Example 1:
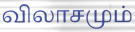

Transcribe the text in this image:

விலாசமும்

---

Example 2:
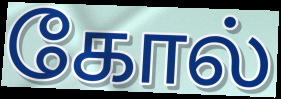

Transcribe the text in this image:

கோல்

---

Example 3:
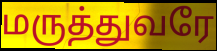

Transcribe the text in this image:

மருத்துவரே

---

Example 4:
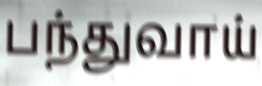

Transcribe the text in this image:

பந்துவாய்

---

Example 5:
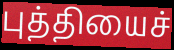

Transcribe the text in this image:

புத்தியைச்